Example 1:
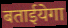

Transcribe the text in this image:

बताईयेगा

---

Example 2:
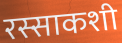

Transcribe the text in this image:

रस्साकशी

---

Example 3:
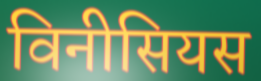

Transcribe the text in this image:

विनीसियस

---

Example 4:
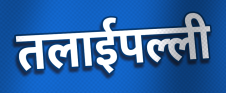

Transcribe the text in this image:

तलाईपल्ली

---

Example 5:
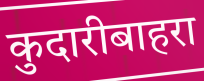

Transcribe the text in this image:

कुदारीबाहरा